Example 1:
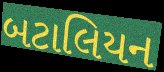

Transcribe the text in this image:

બટાલિયન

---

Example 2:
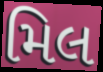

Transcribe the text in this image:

મિલ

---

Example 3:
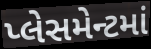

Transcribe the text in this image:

પ્લેસમેન્ટમાં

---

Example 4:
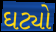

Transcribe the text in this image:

ઘટ્યો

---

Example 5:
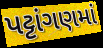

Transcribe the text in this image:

પટ્ટાંગણમાં